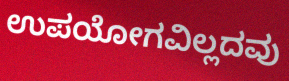
ಉಪಯೋಗವಿಲ್ಲದವು